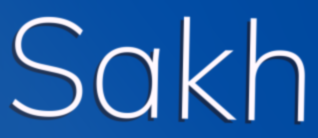
Sakh